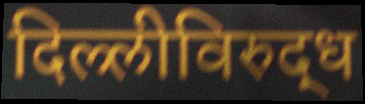
दिल्लीविरुद्ध